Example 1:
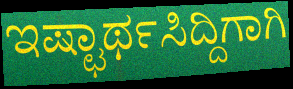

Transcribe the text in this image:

ಇಷ್ಟಾರ್ಥಸಿದ್ದಿಗಾಗಿ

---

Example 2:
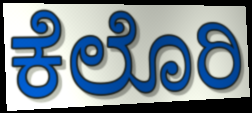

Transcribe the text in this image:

ಕೆಲೊರಿ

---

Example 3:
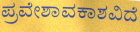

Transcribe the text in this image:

ಪ್ರವೇಶಾವಕಾಶವಿದೆ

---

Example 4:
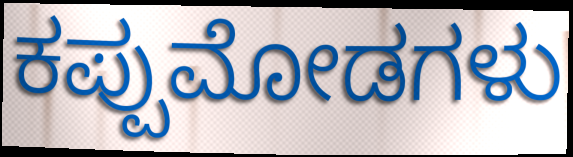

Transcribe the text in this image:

ಕಪ್ಪುಮೋಡಗಳು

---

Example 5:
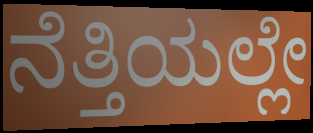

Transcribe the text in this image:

ನೆತ್ತಿಯಲ್ಲೇ